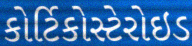
કોર્ટિકોસ્ટેરોઇડ